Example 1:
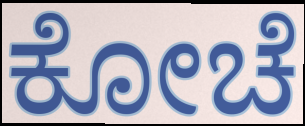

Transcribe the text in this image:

ಕೋಚೆ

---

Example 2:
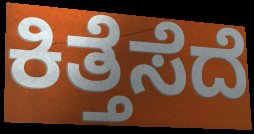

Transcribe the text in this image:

ಕಿತ್ತೆಸೆದೆ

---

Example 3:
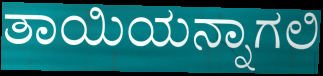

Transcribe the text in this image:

ತಾಯಿಯನ್ನಾಗಲಿ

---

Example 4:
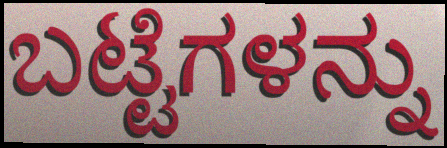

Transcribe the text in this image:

ಬಟ್ಟೆಗಳನ್ನು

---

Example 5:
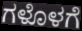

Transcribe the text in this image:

ಗಳೊಳಗೆ